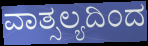
ವಾತ್ಸಲ್ಯದಿಂದ